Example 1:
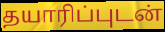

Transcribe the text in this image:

தயாரிப்புடன்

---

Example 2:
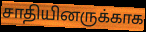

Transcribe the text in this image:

சாதியினருக்காக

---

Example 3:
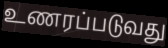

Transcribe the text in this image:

உணரப்படுவது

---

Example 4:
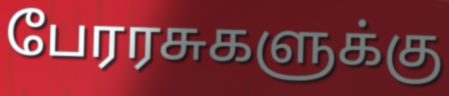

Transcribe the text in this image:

பேரரசுகளுக்கு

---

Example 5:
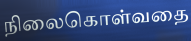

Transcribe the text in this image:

நிலைகொள்வதை